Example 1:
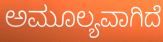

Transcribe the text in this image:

ಅಮೂಲ್ಯವಾಗಿದೆ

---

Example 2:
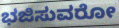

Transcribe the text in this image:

ಭಜಿಸುವರೋ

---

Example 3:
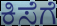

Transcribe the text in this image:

ಕಿಸೆಗೆ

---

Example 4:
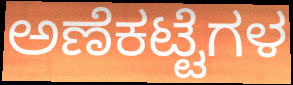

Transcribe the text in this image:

ಅಣೆಕಟ್ಟೆಗಳ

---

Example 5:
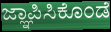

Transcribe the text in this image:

ಜ್ಞಾಪಿಸಿಕೊಂಡೆ